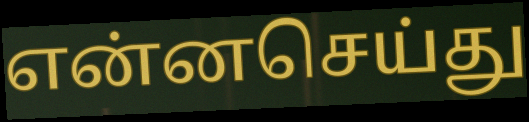
என்னசெய்து